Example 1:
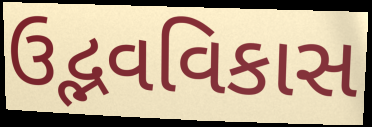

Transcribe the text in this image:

ઉદ્ભવવિકાસ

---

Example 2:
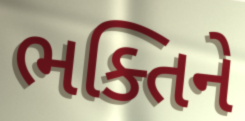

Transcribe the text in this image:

ભક્તિને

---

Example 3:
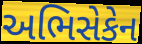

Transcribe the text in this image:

અભિસેકેન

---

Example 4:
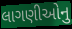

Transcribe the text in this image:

લાગણીઓનુ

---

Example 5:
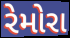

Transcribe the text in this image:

રેમોરા